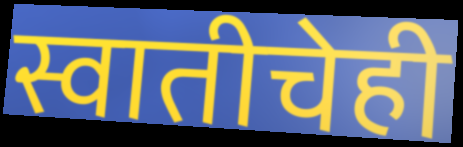
स्वातीचेही